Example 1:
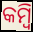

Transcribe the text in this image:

କମ୍ବି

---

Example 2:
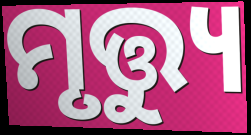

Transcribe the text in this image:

ମୃତ୍ତ୍ୟୁ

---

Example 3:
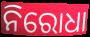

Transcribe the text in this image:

ନିରୋଧା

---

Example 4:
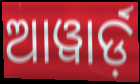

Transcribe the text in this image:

ଆୱାର୍ଡ଼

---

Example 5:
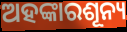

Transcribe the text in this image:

ଅହଙ୍କାରଶୂନ୍ୟ